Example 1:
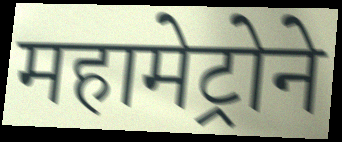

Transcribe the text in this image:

महामेट्रोने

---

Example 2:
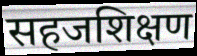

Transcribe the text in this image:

सहजशिक्षण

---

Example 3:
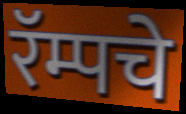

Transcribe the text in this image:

रॅम्पचे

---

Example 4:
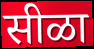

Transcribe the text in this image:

सीळा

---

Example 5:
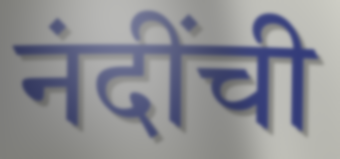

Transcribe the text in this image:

नंदींची